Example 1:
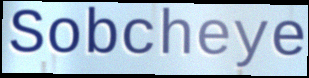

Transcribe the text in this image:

Sobcheye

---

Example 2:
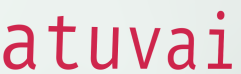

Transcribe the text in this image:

atuvai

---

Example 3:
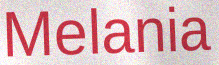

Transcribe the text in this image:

Melania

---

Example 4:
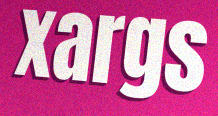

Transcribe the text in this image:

xargs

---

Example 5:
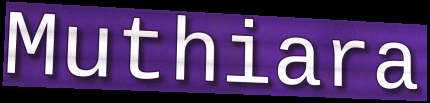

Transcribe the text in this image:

Muthiara